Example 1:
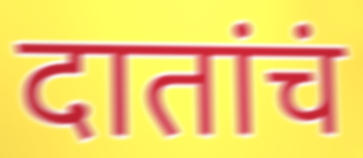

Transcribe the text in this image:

दातांचं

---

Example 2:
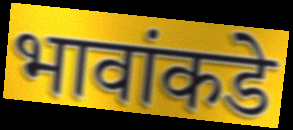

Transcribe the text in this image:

भावांकडे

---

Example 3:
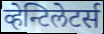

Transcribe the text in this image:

व्हेन्टिलेटर्स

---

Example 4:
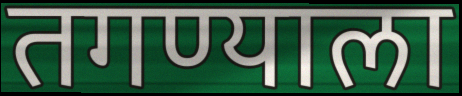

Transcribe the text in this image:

तगण्याला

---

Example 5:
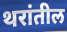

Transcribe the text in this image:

थरांतील